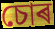
চোৰ